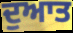
ਦੁਆਤ